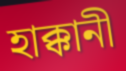
হাক্কানী